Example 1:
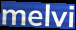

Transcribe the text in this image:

melvi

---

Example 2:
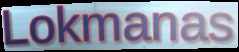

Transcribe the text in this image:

Lokmanas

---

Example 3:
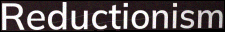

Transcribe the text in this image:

Reductionism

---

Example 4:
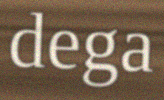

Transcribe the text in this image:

dega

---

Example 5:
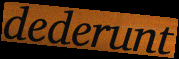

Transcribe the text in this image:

dederunt